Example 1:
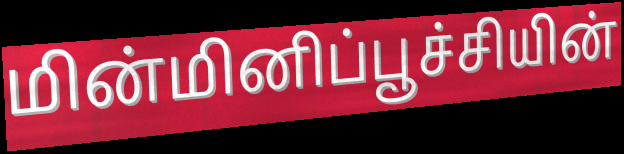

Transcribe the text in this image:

மின்மினிப்பூச்சியின்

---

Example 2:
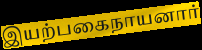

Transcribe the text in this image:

இயற்பகைநாயனார்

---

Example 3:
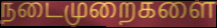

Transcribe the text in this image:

நடைமுறைகளை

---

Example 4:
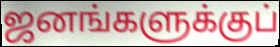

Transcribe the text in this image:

ஜனங்களுக்குப்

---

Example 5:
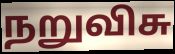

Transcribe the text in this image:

நறுவிசு